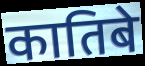
कातिबे